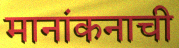
मानांकनाची